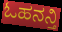
ಓಹನನ್ತಿ